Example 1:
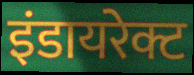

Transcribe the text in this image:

इंडायरेक्ट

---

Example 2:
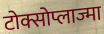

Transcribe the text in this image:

टोक्सोप्लाज्मा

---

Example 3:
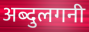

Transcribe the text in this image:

अब्दुलगनी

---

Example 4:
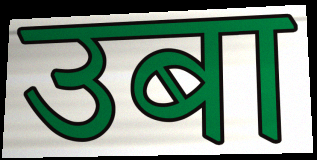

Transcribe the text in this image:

उबा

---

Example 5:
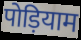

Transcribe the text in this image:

पोड़ियाम